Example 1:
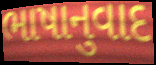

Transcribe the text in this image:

ભાષાનુવાદ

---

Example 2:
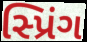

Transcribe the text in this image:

સ્પ્રિંગ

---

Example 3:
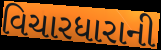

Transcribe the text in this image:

વિચારધારાની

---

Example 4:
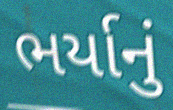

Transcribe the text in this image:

ભર્યાનું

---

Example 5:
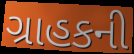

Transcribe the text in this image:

ગ્રાહકની